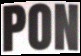
PON